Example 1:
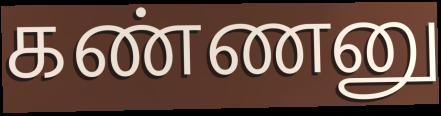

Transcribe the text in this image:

கண்ணனு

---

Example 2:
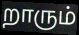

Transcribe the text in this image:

றாரும்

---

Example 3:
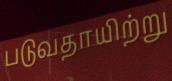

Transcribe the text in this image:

படுவதாயிற்று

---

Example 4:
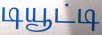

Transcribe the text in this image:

டியூட்டி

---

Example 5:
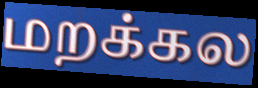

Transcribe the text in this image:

மறக்கல